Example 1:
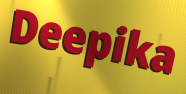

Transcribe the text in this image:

Deepika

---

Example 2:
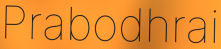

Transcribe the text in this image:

Prabodhrai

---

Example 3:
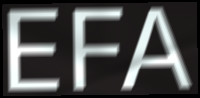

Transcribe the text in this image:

EFA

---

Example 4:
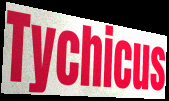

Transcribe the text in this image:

Tychicus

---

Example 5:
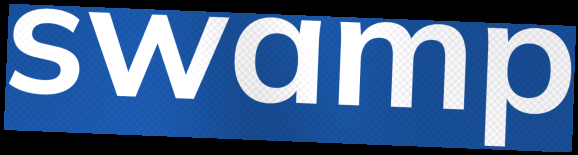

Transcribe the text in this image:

swamp